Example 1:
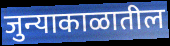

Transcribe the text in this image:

जुन्याकाळातील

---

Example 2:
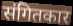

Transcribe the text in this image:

संगितकार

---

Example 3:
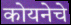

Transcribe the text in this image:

कोयनेचे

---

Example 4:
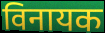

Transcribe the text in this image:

विनायक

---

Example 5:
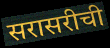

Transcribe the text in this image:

सरासरीची